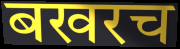
बखरच